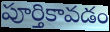
పూర్తికావడం